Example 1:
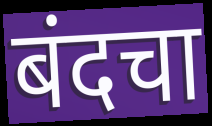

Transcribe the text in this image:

बंदचा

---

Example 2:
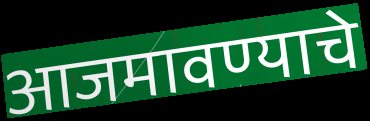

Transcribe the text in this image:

आजमावण्याचे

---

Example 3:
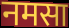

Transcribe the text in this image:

नमसा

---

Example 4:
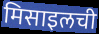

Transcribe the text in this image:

मिसाइलची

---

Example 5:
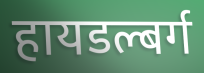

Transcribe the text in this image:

हायडल्बर्ग